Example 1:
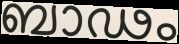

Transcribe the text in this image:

ബാഢം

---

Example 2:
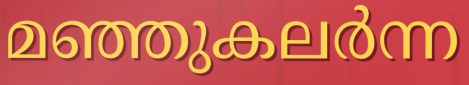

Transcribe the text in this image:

മഞ്ഞുകലർന്ന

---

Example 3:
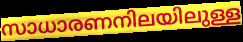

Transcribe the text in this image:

സാധാരണനിലയിലുള്ള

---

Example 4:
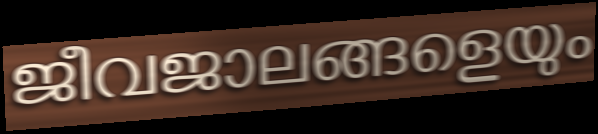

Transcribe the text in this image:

ജീവജാലങ്ങളെയും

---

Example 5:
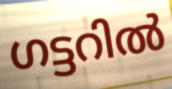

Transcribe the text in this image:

ഗട്ടറിൽ